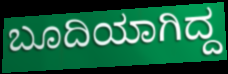
ಬೂದಿಯಾಗಿದ್ದ